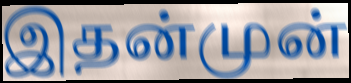
இதன்முன்